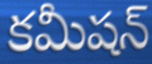
కమీషన్